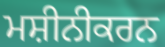
ਮਸ਼ੀਨੀਕਰਨ